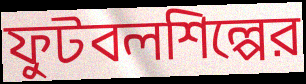
ফুটবলশিল্পের